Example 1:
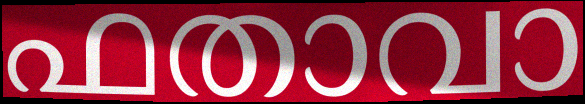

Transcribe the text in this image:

ഫതാവാ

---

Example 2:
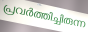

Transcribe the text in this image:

പ്രവർത്തിച്ചിരുന്ന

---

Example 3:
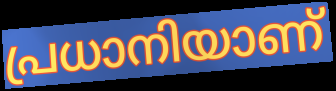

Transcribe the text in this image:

പ്രധാനിയാണ്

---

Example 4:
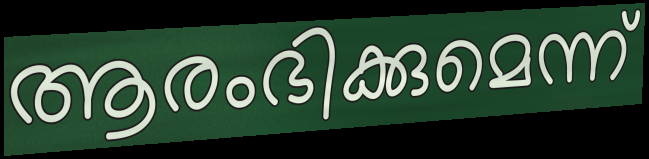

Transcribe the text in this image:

ആരംഭിക്കുമെന്ന്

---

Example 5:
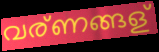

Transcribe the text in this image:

വര്ണങ്ങള്